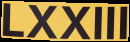
LXXIII